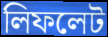
লিফলেট